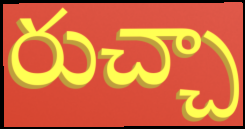
రుచ్చా